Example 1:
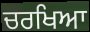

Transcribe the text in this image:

ਚਰਖਿਆ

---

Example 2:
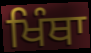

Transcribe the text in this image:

ਖਿੰਥਾ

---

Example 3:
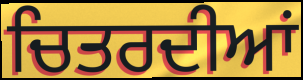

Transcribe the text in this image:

ਚਿਤਰਦੀਆਂ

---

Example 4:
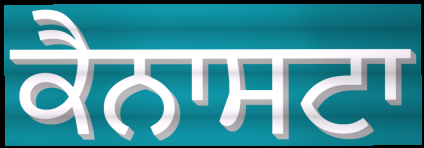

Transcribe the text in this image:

ਕੈਨਾਸਟਾ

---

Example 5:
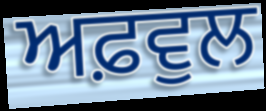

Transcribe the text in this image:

ਅਫ਼ਵੁਲ